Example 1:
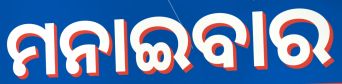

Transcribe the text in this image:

ମନାଇବାର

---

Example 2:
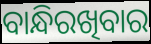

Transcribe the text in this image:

ବାନ୍ଧିରଖିବାର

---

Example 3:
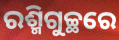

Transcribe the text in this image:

ରଶ୍ମିଗୁଚ୍ଛରେ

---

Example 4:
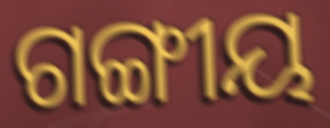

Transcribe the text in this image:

ଗଙ୍ଗୀୟ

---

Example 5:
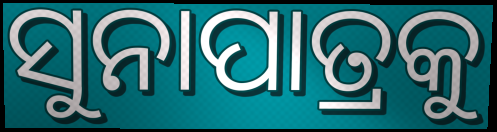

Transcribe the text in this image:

ସୁନାପାତ୍ରକୁ